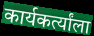
कार्यकर्त्यांला